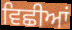
ਵਿਛੀਆਂ